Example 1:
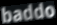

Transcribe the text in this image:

baddo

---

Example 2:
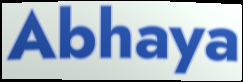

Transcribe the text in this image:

Abhaya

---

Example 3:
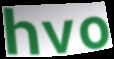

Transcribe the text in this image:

hvo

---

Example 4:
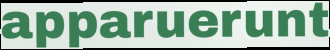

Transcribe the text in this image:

apparuerunt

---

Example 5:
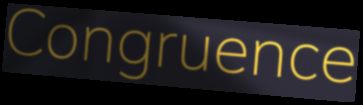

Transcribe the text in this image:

Congruence